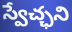
స్వేచ్ఛని